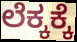
ಲೆಕ್ಕಕ್ಕೆ